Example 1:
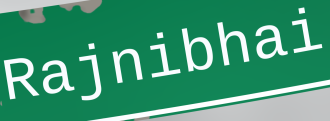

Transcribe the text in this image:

Rajnibhai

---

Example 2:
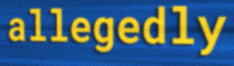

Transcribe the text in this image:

allegedly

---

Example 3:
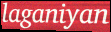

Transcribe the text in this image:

laganiyan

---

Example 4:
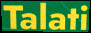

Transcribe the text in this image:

Talati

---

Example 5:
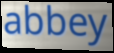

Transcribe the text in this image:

abbey